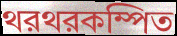
থরথরকম্পিত